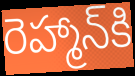
రెహ్మాన్‌కి